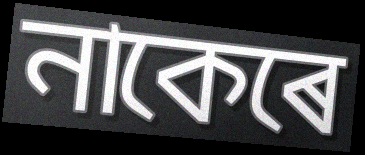
নাকেৰে